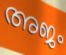
അജം